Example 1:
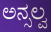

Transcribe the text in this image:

ಅನ್ಸಲ್ವ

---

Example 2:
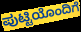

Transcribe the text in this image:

ಪುಟ್ಟಿಯೊಂದಿಗೆ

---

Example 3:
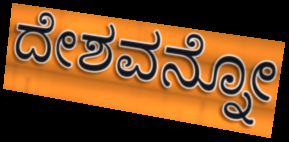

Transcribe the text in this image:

ದೇಶವನ್ನೋ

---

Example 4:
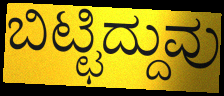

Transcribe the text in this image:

ಬಿಟ್ಟಿದ್ದುವು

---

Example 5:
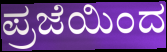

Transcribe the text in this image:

ಪ್ರಜೆಯಿಂದ